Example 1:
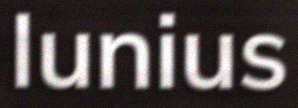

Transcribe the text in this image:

Iunius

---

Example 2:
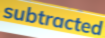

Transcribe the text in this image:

subtracted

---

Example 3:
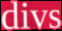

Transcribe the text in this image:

divs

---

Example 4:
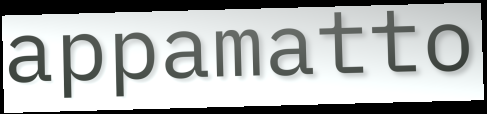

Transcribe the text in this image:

appamatto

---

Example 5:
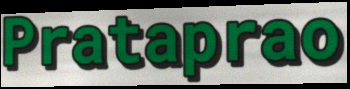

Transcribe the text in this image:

Prataprao